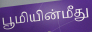
பூமியின்மீது